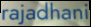
rajadhani